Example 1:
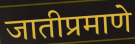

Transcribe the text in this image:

जातीप्रमाणे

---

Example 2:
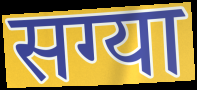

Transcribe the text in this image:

सग्या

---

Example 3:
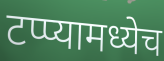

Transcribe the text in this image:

टप्प्यामध्येच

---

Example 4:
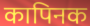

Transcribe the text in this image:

कापिनक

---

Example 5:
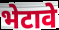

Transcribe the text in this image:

भेटावे